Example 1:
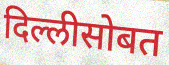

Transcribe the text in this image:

दिल्लीसोबत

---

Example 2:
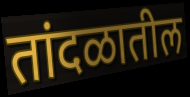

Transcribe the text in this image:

तांदळातील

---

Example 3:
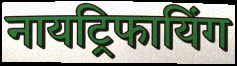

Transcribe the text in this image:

नायट्रिफायिंग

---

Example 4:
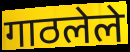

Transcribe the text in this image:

गाठलेले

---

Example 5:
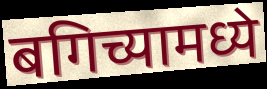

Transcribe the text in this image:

बगिच्यामध्ये